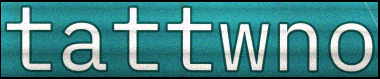
tattwno